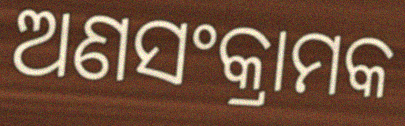
ଅଣସଂକ୍ରାମକ